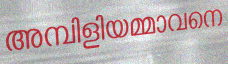
അമ്പിളിയമ്മാവനെ